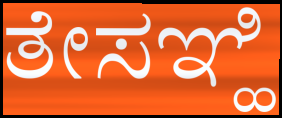
ತೇಸಞ್ಹಿ